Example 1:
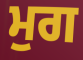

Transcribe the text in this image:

ਮੁਗ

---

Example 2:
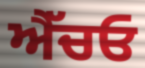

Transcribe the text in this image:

ਐੱਚਓ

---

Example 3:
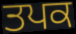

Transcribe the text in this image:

ਤਪਕ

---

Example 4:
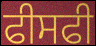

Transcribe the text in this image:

ਫੀਸਫੀ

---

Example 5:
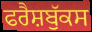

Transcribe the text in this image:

ਫਰੈਸ਼ਬੁੱਕਸ